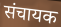
संचायक